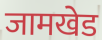
जामखेड